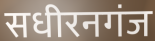
सधीरनगंज